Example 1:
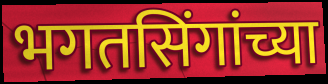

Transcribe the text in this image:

भगतसिंगांच्या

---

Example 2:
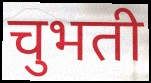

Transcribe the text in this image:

चुभती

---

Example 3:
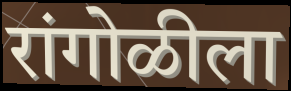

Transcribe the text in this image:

रांगोळीला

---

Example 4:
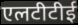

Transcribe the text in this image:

एलटीटीई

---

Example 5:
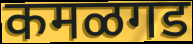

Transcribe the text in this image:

कमळगड